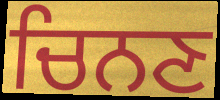
ਚਿਨਣ